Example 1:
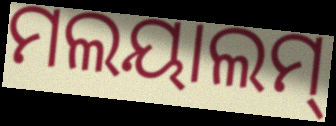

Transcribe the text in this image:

ମଲୟାଲମ୍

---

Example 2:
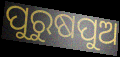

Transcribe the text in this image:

ପୁରୁଷପୁଅ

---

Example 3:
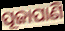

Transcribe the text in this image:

ପୂଜାପାଣି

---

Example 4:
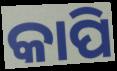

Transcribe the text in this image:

କାପି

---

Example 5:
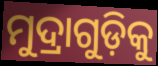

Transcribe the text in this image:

ମୁଦ୍ରାଗୁଡ଼ିକୁ